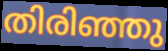
തിരിഞ്ഞു